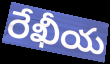
రేఖీయ